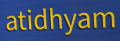
atidhyam